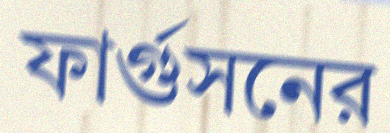
ফার্গুসনের